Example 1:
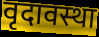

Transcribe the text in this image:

वृदावस्था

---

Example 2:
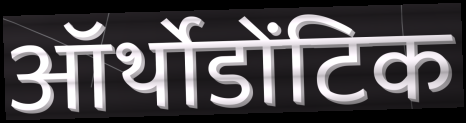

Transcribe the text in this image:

ऑर्थोडोंटिक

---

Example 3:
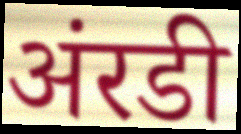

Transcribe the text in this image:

अंरडी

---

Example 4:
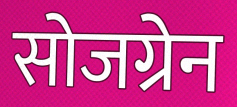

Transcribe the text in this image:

सोजग्रेन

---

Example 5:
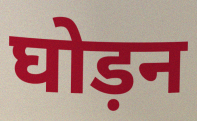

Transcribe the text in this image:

घोड़न